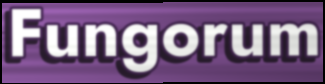
Fungorum